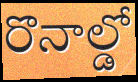
రొనాల్డో